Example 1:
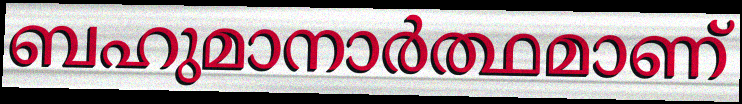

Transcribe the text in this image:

ബഹുമാനാർത്ഥമാണ്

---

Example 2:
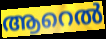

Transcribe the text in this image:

ആറെൽ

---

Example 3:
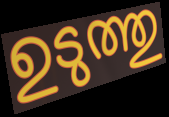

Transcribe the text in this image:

ഉടുത്തു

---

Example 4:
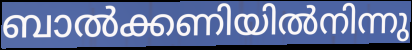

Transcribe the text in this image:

ബാൽക്കണിയിൽനിന്നു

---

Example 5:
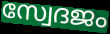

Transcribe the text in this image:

സ്വേദജം